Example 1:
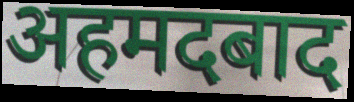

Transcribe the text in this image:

अहमदबाद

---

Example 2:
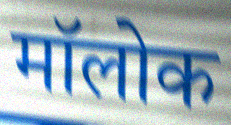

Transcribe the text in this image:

मॉलोक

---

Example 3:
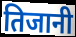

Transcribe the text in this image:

तिजानी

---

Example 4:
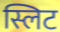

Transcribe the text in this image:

स्लिट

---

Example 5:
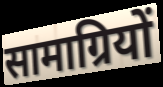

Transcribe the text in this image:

सामाग्रियों